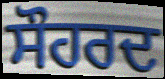
ਸੌਹਰਦ